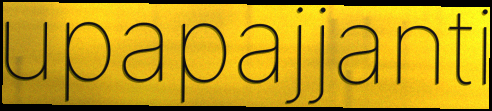
upapajjanti